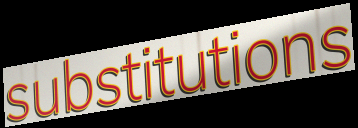
substitutions